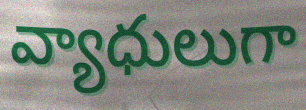
వ్యాధులుగా